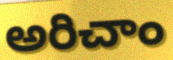
అరిచాం